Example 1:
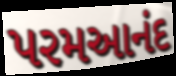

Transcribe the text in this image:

પરમઆનંદ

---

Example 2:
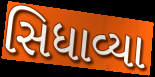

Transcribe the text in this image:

સિધાવ્યા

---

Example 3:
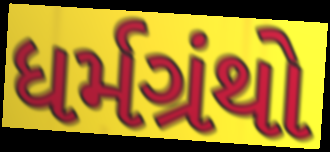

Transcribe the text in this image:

ધર્મગ્રંથો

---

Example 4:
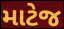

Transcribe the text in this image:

માટેજ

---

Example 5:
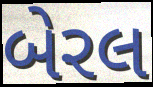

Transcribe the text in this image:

બેરલ